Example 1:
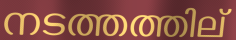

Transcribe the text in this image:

നടത്തത്തില്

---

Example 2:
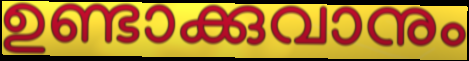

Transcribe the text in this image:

ഉണ്ടാക്കുവാനും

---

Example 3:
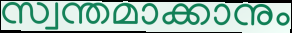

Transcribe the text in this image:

സ്വന്തമാക്കാനും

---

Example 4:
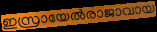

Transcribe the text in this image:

ഇസ്രായേൽരാജാവായ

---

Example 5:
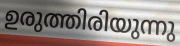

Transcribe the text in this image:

ഉരുത്തിരിയുന്നു